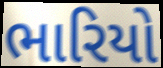
ભારિયો